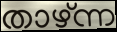
താഴ്ന്ന